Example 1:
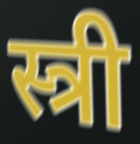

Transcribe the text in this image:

स्त्री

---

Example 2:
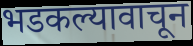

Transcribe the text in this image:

भडकल्यावाचून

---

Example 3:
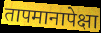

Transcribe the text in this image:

तापमानापेक्षा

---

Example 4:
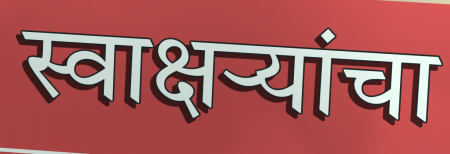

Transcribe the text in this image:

स्वाक्षऱ्यांचा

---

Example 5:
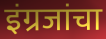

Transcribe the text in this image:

इंग्रजांचा